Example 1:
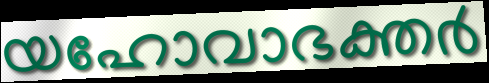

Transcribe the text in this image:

യഹോവാഭക്തർ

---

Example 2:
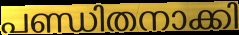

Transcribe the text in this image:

പണ്ഡിതനാക്കി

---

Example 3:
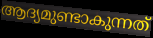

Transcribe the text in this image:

ആദ്യമുണ്ടാകുന്നത്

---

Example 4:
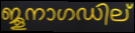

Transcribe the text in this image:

ജൂനാഗഡില്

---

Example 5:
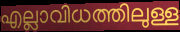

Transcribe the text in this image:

എല്ലാവിധത്തിലുള്ള